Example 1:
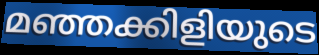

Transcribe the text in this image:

മഞ്ഞക്കിളിയുടെ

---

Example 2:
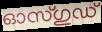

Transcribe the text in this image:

ഓസ്ഗുഡ്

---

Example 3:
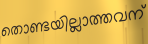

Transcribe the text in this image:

തൊണ്ടയില്ലാത്തവന്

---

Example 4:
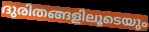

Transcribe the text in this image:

ദുരിതങ്ങളിലൂടെയും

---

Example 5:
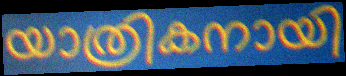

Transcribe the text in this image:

യാത്രികനായി